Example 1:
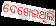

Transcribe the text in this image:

ଦେଖେଇଥିଲି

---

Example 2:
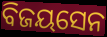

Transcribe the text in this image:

ବିଜୟସେନ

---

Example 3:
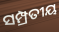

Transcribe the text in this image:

ସମ୍ପ୍ରତୀୟ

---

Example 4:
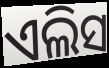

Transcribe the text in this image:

ଏଲିସ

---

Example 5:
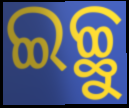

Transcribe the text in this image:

ଇଚ୍ଛୁ